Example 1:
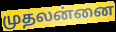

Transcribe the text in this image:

முதலன்னை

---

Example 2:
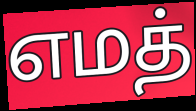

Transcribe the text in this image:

எமத்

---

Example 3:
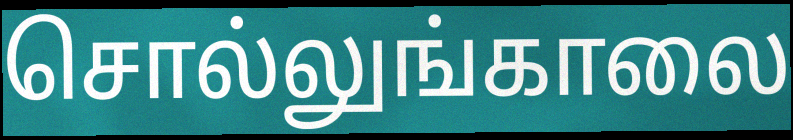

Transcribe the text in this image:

சொல்லுங்காலை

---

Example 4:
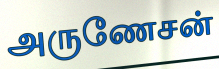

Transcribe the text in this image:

அருணேசன்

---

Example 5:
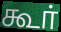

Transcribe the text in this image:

கூர்